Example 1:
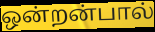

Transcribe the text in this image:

ஒன்றன்பால்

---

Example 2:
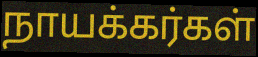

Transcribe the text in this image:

நாயக்கர்கள்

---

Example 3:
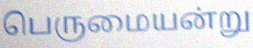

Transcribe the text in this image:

பெருமையன்று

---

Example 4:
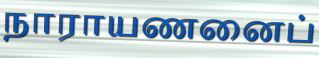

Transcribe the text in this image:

நாராயணனைப்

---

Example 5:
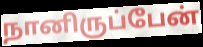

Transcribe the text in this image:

நானிருப்பேன்